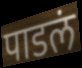
पाडलं